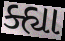
ક્હ્યા